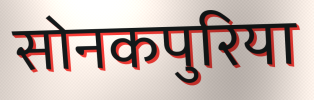
सोनकपुरिया